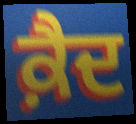
ਕ਼ੈਦ